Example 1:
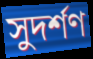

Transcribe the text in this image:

সুদর্শণ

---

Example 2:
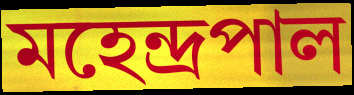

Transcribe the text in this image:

মহেন্দ্রপাল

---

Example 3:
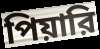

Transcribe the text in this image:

পিয়ারি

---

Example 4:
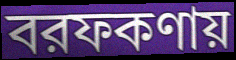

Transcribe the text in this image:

বরফকণায়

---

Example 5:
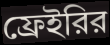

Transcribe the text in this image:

ফ্রেইরির